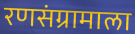
रणसंग्रामाला